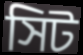
সিট